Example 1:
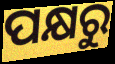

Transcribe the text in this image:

ପକ୍ଷରୁ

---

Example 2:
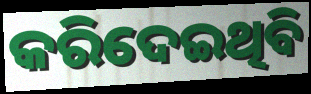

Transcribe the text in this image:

କରିଦେଇଥିବି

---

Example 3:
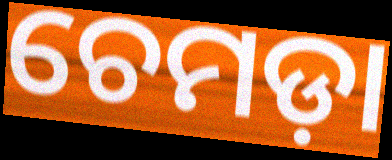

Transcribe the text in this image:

ଚେମଡ଼ା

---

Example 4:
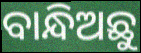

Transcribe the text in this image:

ବାନ୍ଧିଅଛୁ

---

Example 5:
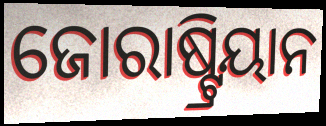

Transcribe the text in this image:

ଜୋରାଷ୍ଟ୍ରିୟାନ